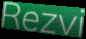
Rezvi